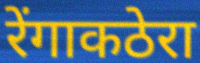
रेंगाकठेरा